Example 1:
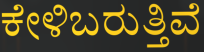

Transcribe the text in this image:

ಕೇಳಿಬರುತ್ತಿವೆ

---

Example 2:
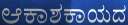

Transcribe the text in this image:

ಆಕಾಶಕಾಯದ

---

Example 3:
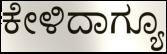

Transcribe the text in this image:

ಕೇಳಿದಾಗ್ಯೂ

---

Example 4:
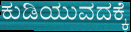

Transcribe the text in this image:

ಕುಡಿಯುವದಕ್ಕೆ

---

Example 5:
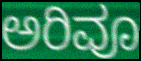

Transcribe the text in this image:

ಅರಿವೂ